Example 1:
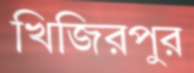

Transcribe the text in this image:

খিজিরপুর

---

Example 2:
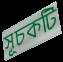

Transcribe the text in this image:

সূচকটি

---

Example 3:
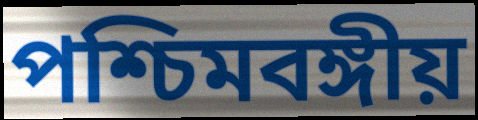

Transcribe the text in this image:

পশ্চিমবঙ্গীয়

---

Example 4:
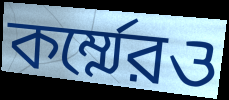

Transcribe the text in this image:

কর্ম্মেরও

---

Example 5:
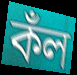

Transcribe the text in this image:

কঁল